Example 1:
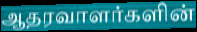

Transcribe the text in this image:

ஆதரவாளர்களின்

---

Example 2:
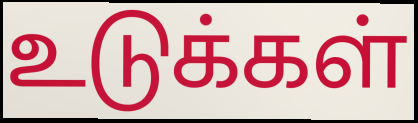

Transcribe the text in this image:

உடுக்கள்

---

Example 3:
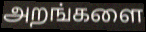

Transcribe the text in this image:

அறங்களை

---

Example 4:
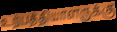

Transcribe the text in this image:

உற்பத்தியாளருக்கு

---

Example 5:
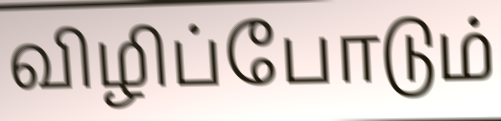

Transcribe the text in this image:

விழிப்போடும்